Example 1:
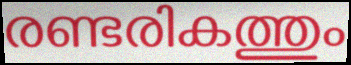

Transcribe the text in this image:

രണ്ടരികത്തും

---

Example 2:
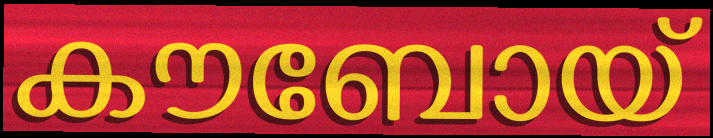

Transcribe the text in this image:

കൗബോയ്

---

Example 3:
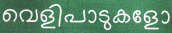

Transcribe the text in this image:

വെളിപാടുകളോ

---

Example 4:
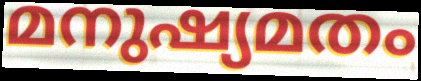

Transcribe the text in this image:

മനുഷ്യമതം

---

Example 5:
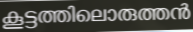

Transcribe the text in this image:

കൂട്ടത്തിലൊരുത്തൻ